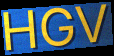
HGV